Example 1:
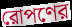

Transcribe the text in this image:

রোপণের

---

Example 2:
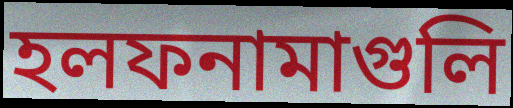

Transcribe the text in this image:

হলফনামাগুলি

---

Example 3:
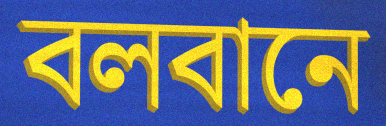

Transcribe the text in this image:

বলবানে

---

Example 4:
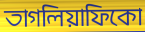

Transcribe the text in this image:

তাগলিয়াফিকো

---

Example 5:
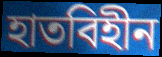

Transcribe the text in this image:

হাতবিহীন